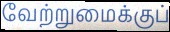
வேற்றுமைக்குப்